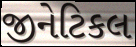
જીનેટિકલ